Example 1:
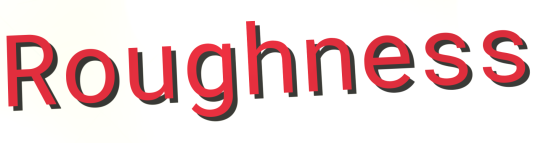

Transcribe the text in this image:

Roughness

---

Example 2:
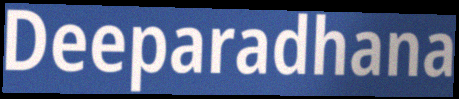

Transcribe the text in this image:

Deeparadhana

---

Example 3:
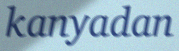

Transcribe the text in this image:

kanyadan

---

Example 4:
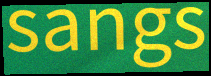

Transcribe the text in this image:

sangs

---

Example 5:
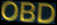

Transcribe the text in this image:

OBD